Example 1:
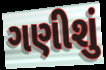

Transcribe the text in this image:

ગણીશું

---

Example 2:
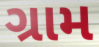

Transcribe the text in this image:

ગ્રામ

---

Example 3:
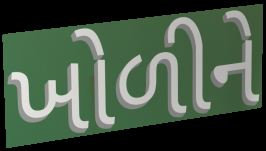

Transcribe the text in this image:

ખોળીને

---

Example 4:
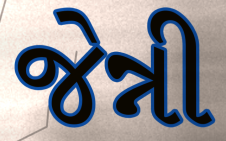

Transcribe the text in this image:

જેન્ની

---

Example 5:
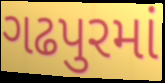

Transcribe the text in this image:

ગઢપુરમાં